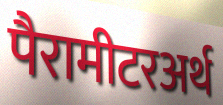
पैरामीटरअर्थ